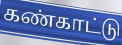
கண்காட்டு